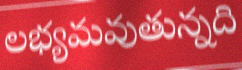
లభ్యమవుతున్నది